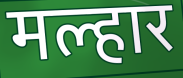
मल्हार